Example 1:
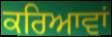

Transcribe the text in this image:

ਕਰਿਆਵਾਂ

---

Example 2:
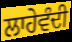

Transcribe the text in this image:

ਲਾਹੇਵੰਦੀ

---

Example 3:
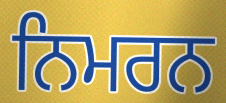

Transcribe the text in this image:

ਨਿਮਰਨ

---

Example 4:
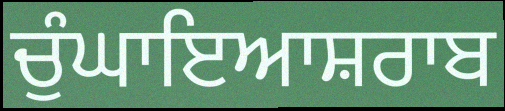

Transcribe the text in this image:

ਚੁੰਘਾਇਆਸ਼ਰਾਬ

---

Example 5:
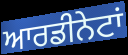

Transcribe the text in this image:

ਆਰਡੀਨੇਟਾਂ